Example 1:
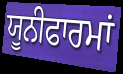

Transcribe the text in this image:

ਯੂਨੀਫਾਰਮਾਂ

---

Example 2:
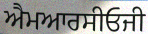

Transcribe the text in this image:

ਐਮਆਰਸੀਓਜੀ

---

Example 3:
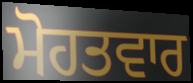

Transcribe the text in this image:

ਮੋਹਤਵਾਰ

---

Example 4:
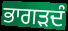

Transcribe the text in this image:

ਭਾਗੜਦੰ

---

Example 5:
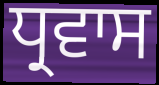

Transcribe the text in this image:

ਧ੍ਰਵਾਸ